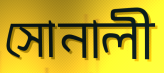
সোনালী